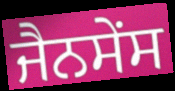
ਜੈਨਸੇਂਸ